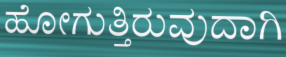
ಹೋಗುತ್ತಿರುವುದಾಗಿ